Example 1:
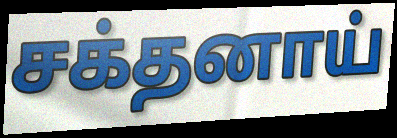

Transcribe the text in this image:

சக்தனாய்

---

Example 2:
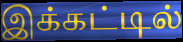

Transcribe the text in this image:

இக்கட்டில்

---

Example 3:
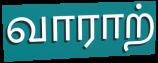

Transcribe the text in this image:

வாராற்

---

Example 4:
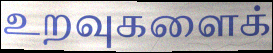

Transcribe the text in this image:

உறவுகளைக்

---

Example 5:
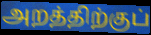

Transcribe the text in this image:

அறத்திற்குப்